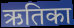
ऋतिका